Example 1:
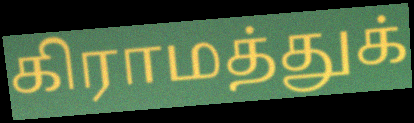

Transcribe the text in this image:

கிராமத்துக்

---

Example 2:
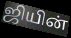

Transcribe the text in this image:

ஜியின்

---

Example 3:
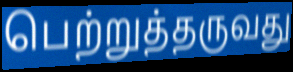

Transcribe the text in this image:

பெற்றுத்தருவது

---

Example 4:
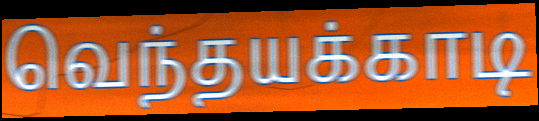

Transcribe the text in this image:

வெந்தயக்காடி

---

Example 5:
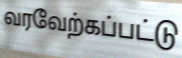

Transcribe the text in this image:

வரவேற்கப்பட்டு